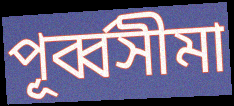
পূর্ব্বসীমা